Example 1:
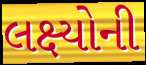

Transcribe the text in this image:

લક્ષ્યોની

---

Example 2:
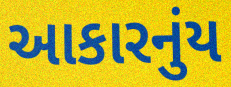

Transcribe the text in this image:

આકારનુંય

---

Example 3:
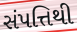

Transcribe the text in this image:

સંપત્તિથી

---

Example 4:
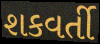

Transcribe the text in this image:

શકવર્તી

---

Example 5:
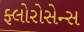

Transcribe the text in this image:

ફ્લોરોસેન્સ